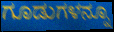
ಗೂಡುಗಳನ್ನೂ